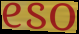
eso